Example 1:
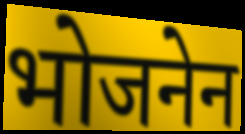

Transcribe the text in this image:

भोजनेन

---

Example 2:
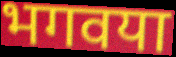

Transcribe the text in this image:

भगवया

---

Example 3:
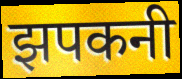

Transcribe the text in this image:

झपकनी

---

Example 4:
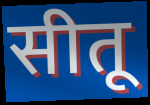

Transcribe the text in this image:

सीतू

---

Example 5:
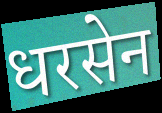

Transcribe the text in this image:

धरसेन